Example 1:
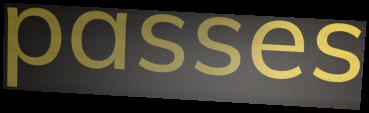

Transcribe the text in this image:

passes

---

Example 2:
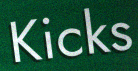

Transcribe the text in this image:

Kicks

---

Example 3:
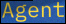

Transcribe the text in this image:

Agent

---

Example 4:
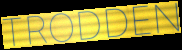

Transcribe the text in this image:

TRODDEN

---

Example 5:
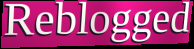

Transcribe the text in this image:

Reblogged